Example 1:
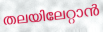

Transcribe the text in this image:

തലയിലേറ്റാൻ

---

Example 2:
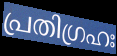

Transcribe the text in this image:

പ്രതിഗ്രഹഃ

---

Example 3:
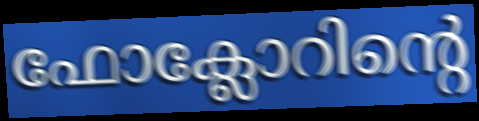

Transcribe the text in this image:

ഫോക്ലോറിന്റെ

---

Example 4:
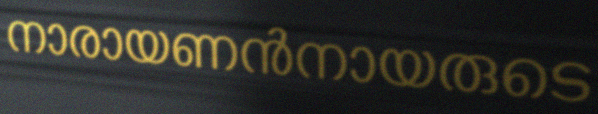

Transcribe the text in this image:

നാരായണൻനായരുടെ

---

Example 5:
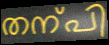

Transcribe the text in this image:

തന്പി